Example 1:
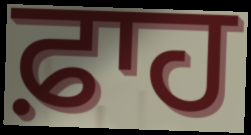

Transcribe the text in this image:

ਫ਼ਾਹ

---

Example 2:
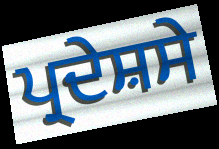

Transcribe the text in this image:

ਪ੍ਰਦੇਸ਼ਸੇ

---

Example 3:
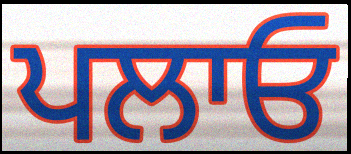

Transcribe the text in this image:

ਪਲਾਓ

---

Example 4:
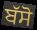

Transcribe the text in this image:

ਬੱਸੋ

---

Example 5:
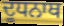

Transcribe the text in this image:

ਦੂਧਨਾਥ